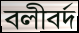
বলীবর্দ